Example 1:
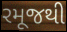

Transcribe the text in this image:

રમૂજથી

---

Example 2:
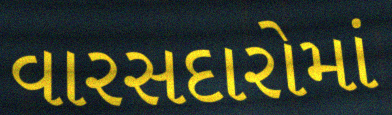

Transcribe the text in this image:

વારસદારોમાં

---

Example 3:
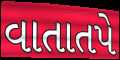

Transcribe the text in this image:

વાતાતપે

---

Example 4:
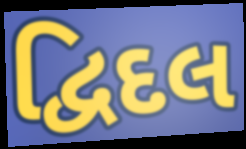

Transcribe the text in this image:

દ્વિદલ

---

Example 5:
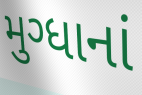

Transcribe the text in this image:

મુગ્ધાનાં